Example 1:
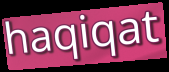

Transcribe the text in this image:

haqiqat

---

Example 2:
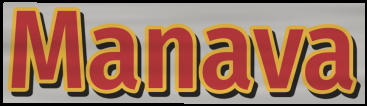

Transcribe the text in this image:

Manava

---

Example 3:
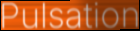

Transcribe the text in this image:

Pulsation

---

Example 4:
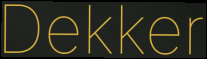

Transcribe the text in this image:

Dekker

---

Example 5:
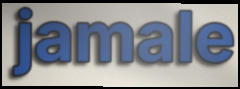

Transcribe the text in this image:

jamale